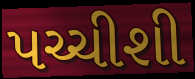
પચ્ચીશી